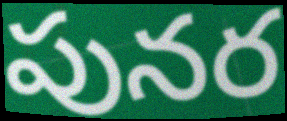
పునర